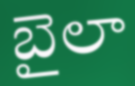
బైలా